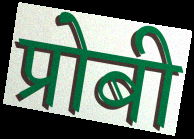
प्रोबी